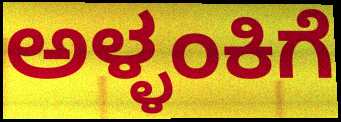
ಅಳ್ಳಂಕಿಗೆ